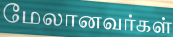
மேலானவர்கள்